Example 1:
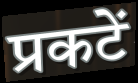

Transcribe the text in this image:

प्रकटें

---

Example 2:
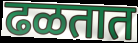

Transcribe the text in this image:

ढळतात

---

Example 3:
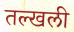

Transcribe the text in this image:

तल्खली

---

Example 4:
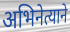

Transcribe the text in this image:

अभिनेत्याने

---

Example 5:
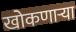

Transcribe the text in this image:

खोकणाऱ्या